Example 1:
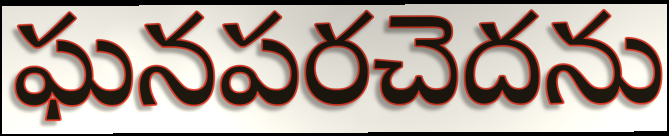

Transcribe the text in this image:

ఘనపరచెదను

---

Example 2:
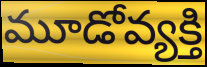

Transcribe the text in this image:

మూడోవ్యక్తి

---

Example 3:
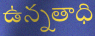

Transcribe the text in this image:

ఉన్నతాధి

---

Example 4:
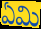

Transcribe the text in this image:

ఏమి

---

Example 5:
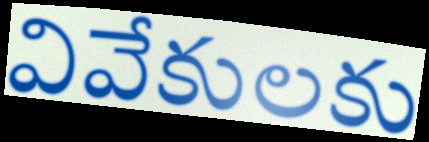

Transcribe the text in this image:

వివేకులకు